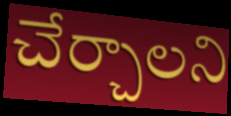
చేర్చాలని